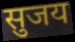
सुजय